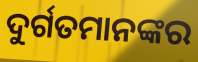
ଦୁର୍ଗତମାନଙ୍କର